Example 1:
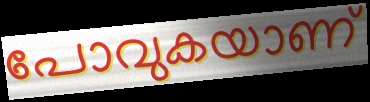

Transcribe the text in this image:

പോവുകയാണ്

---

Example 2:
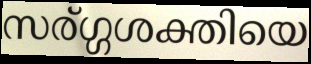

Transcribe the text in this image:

സര്ഗ്ഗശക്തിയെ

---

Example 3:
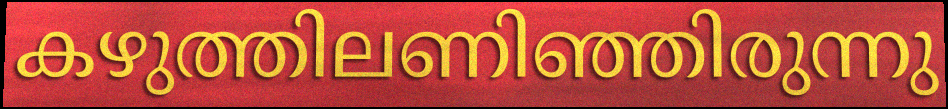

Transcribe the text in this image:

കഴുത്തിലണിഞ്ഞിരുന്നു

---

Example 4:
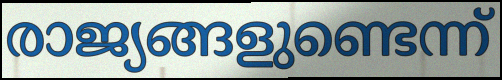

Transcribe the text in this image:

രാജ്യങ്ങളുണ്ടെന്ന്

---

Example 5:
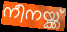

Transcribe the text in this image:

നീനയ്ക്ക്